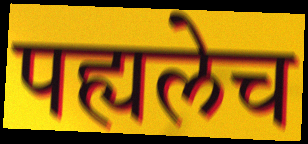
पह्यलेच